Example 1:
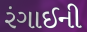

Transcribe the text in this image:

રંગાઈની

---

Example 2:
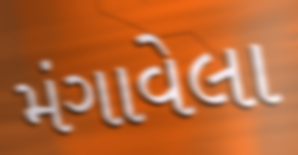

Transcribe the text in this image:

મંગાવેલા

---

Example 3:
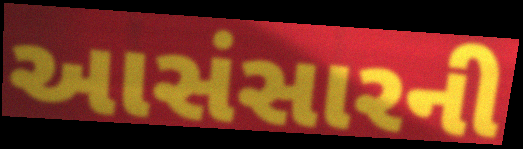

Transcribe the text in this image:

આસંસારની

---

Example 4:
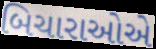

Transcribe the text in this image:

બિચારાઓએ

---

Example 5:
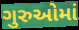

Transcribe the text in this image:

ગુરુઓમાં